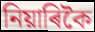
নিয়াৰিকৈ